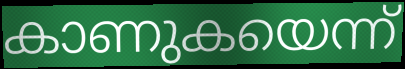
കാണുകയെന്ന്